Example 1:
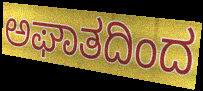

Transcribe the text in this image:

ಅಘಾತದಿಂದ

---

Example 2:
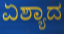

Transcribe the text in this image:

ಏಶ್ಯಾದ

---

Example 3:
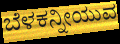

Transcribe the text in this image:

ಬೆಳಕನ್ನೀಯುವ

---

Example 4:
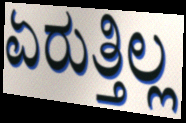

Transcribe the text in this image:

ಏರುತ್ತಿಲ್ಲ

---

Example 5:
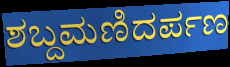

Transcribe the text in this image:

ಶಬ್ದಮಣಿದರ್ಪಣ